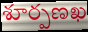
శూర్పణఖ